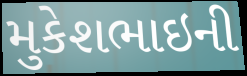
મુકેશભાઇની